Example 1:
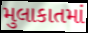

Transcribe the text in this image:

મુલાકાતમાં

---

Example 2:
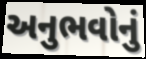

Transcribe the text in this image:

અનુભવોનું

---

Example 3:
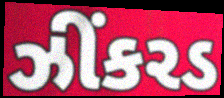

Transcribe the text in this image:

ઝીંકરડ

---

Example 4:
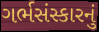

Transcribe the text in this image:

ગર્ભસંસ્કારનું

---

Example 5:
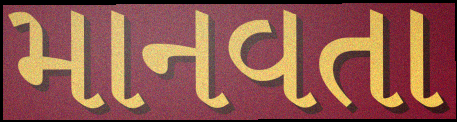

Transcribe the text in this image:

માનવતા